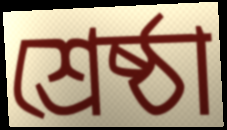
শ্রেষ্ঠা